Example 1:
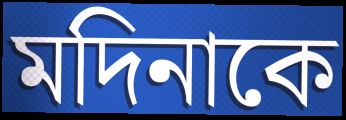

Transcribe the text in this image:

মদিনাকে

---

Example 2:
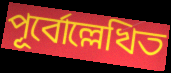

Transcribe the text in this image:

পূর্বোল্লেখিত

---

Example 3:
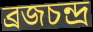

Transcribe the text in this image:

ব্রজচন্দ্র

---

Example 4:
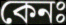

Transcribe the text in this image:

কেনঃ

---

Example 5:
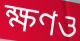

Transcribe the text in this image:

ক্ষণও